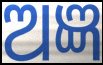
ଅଜ୍ଞ